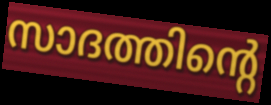
സാദത്തിന്റെ